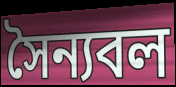
সৈন্যবল